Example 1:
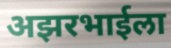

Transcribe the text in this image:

अझरभाईला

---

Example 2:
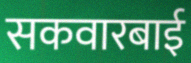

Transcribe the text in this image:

सकवारबाई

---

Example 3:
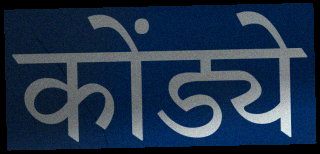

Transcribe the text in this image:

कोंड्ये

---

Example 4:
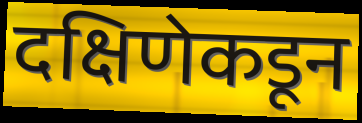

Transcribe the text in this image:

दक्षिणेकडून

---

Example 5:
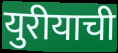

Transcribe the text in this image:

युरीयाची